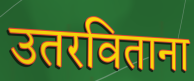
उतरविताना